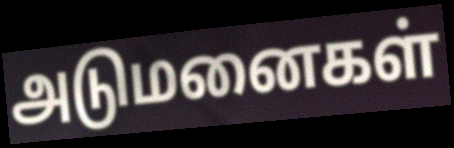
அடுமனைகள்